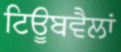
ਟਿਊਬਵੈਲਾਂ